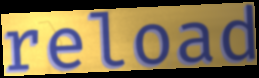
reload